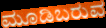
ಮೂಡಿಬರುವ